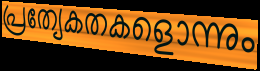
പ്രത്യേകതകളൊന്നും